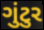
ગુંટુર